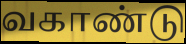
வகாண்டு